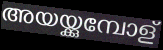
അയയ്ക്കുമ്പോള്